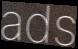
ads